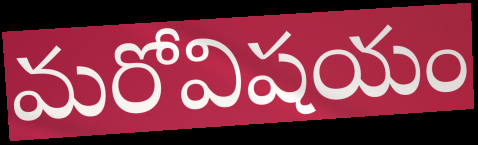
మరోవిషయం